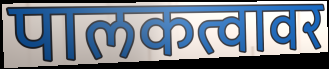
पालकत्वावर